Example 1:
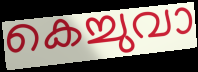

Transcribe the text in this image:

കെച്ചുവാ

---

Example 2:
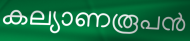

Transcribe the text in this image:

കല്യാണരൂപൻ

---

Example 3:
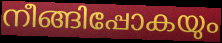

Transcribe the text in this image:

നീങ്ങിപ്പോകയും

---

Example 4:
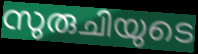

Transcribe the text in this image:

സുരുചിയുടെ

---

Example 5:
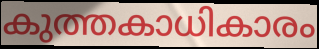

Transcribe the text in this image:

കുത്തകാധികാരം